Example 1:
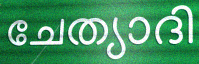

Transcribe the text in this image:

ചേത്യാദി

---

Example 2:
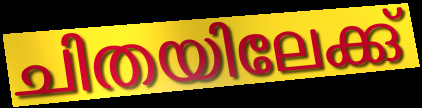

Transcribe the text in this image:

ചിതയിലേക്കു്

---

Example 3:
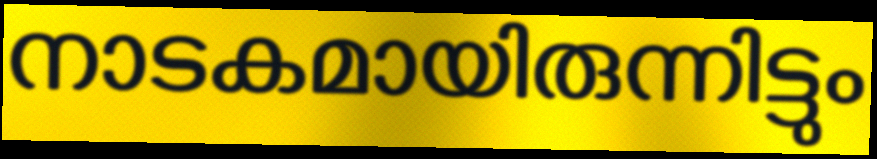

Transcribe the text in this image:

നാടകമായിരുന്നിട്ടും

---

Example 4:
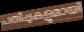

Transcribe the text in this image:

പതിപ്പുകളുമായി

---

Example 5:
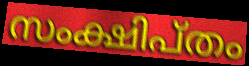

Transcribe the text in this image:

സംക്ഷിപ്തം